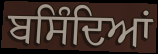
ਬਸਿੰਦਿਆਂ